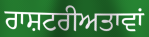
ਰਾਸ਼ਟਰੀਅਤਾਵਾਂ